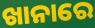
ଖାନାରେ